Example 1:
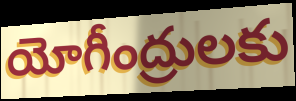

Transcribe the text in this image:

యోగీంద్రులకు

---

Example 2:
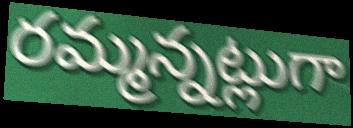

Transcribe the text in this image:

రమ్మన్నట్లుగా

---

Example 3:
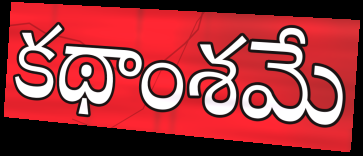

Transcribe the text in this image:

కథాంశమే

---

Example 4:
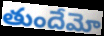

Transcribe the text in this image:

తుందేమో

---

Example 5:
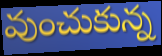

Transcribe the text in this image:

వుంచుకున్న